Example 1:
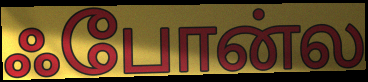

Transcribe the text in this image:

ஃபோன்ல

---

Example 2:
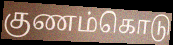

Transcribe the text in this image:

குணம்கொடு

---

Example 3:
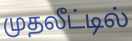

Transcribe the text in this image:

முதலீட்டில்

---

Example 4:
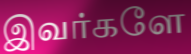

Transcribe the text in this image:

இவர்களே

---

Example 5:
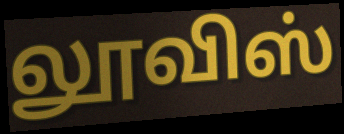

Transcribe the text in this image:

லூவிஸ்